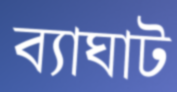
ব্যাঘাট